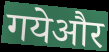
गयेऔर